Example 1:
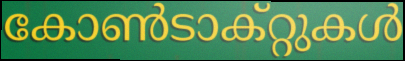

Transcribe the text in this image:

കോൺടാക്റ്റുകൾ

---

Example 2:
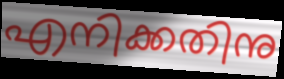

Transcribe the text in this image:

എനിക്കതിനു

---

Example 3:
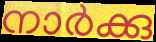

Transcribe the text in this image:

നാർക്കു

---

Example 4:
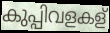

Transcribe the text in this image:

കുപ്പിവളകള്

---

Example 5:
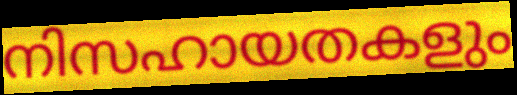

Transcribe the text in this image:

നിസഹായതകളും